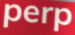
perp